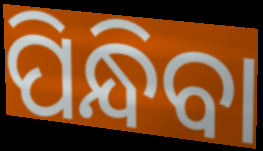
ପିନ୍ଧିବା